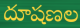
దూషణల